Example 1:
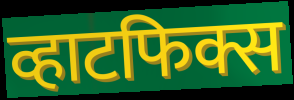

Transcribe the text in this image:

व्हाटफिक्स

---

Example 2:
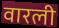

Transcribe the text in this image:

वारली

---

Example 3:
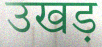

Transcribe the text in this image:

उखड़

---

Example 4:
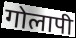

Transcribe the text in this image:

गोलापी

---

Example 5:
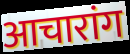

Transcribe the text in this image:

आचारांग